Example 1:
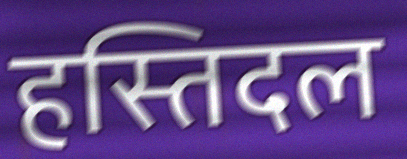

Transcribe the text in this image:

हस्तिदल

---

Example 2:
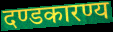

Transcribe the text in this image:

दण्डकारण्य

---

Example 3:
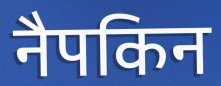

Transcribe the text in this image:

नैपकिन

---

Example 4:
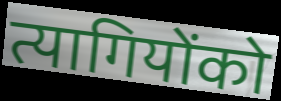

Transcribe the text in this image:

त्यागियोंको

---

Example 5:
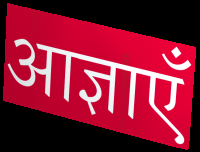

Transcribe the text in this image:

आज्ञाएँ